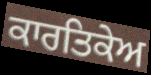
ਕਾਰਤਿਕੇਅ